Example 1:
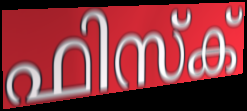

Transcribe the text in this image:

ഫിസ്ക്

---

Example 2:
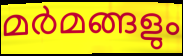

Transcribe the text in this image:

മർമങ്ങളും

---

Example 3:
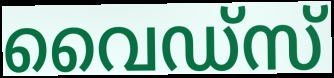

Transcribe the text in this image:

വൈഡ്സ്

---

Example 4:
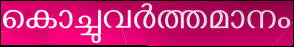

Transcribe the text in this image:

കൊച്ചുവർത്തമാനം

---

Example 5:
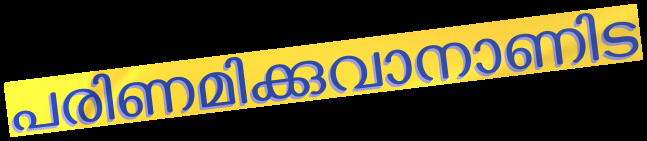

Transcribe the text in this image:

പരിണമിക്കുവാനാണിട